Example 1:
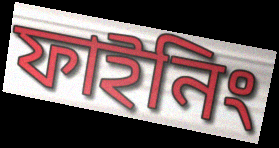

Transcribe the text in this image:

ফাইনিং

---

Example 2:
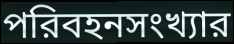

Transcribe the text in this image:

পরিবহনসংখ্যার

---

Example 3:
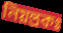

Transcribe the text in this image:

নিয়ন্ত্রকঃ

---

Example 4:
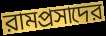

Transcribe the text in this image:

রামপ্রসাদের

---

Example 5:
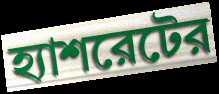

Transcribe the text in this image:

হ্যাশরেটের